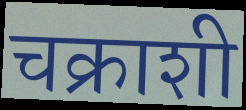
चक्राशी